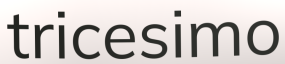
tricesimo